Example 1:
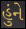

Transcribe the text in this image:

હુંને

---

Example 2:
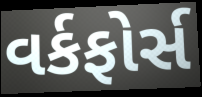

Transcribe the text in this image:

વર્કફોર્સ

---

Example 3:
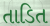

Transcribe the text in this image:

તાડિત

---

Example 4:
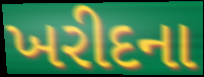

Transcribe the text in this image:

ખરીદના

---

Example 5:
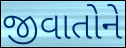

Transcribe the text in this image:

જીવાતોને